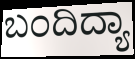
ಬಂದಿದ್ಯಾ